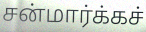
சன்மார்க்கச்